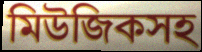
মিউজিকসহ